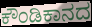
ಕೌಂಡಿಕಾನದ